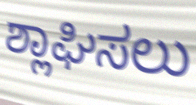
ಶ್ಲಾಘಿಸಲು